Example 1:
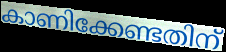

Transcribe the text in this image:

കാണിക്കേണ്ടതിന്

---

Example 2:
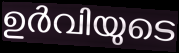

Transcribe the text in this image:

ഉർവിയുടെ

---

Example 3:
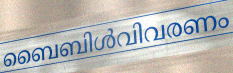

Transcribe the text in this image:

ബൈബിൾവിവരണം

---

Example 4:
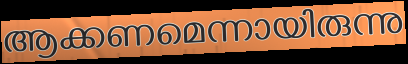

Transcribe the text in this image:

ആക്കണമെന്നായിരുന്നു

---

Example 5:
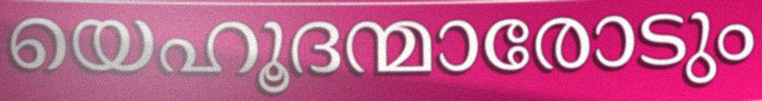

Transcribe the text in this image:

യെഹൂദന്മാരോടും